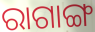
ରାଗାଙ୍ଗ